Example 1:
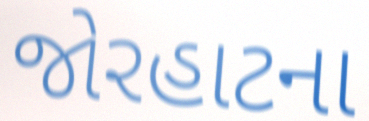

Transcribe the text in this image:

જોરહાટના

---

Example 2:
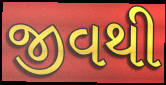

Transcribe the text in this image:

જીવથી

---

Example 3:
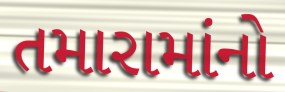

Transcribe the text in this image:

તમારામાંનો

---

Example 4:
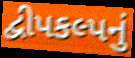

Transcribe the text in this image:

દ્વીપકલ્પનું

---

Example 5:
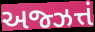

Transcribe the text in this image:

અજ્ઝત્તં